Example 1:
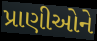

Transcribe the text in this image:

પ્રાણીઓને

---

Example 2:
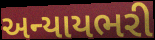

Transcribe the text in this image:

અન્યાયભરી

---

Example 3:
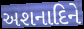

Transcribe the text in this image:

અશનાદિને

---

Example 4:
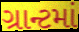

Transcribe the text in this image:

ગ્રાન્ટમાં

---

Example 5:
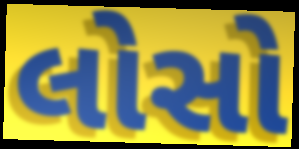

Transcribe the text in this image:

લોસો